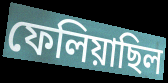
ফেলিয়াছিল